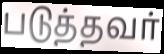
படுத்தவர்